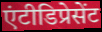
एंटीडिप्रेसेंट